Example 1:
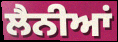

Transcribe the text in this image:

ਲੈਨੀਆਂ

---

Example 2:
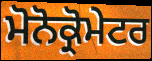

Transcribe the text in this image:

ਮੋਨੋਕ੍ਰੋਮੇਟਰ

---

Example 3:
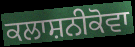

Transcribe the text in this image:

ਕਲਾਸ਼ਨੀਕੋਵਾ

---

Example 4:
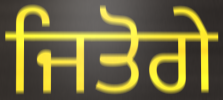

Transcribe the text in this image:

ਜਿਤੋਗੇ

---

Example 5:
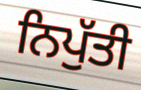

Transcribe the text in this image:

ਨਿਪੁੱਤੀ